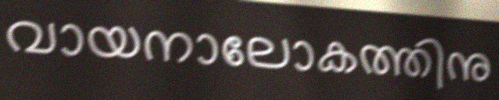
വായനാലോകത്തിനു